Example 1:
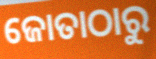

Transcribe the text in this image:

ଜୋତାଠାରୁ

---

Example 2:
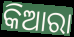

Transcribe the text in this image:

କିଆରା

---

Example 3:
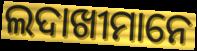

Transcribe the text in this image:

ଲଦାଖୀମାନେ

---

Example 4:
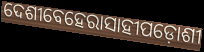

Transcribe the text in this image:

ଦେଶୀବେହେରାସାହୀପଡ଼ୋଶୀ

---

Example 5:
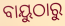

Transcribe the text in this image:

ବାୟୁଠାରୁ